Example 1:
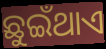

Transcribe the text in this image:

ଛୁଇଁଥାଏ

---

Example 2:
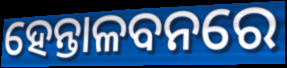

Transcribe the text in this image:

ହେନ୍ତାଳବନରେ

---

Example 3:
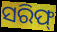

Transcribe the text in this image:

ସରିଫ୍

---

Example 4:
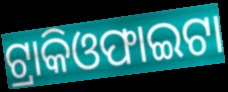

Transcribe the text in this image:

ଟ୍ରାକିଓଫାଇଟା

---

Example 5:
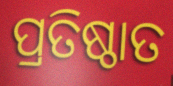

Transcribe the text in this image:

ପ୍ରତିଷ୍ଠାତ